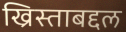
ख्रिस्ताबद्दल